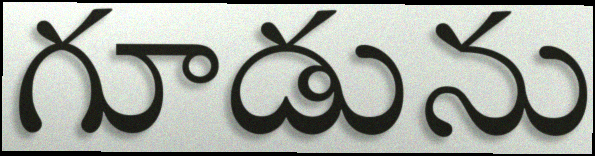
గూడును